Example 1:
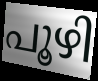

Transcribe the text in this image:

പൂഴി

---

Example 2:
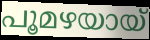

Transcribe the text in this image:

പൂമഴയായ്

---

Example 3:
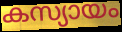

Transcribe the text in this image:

കസ്യായം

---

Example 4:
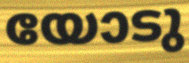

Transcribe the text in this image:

യോടു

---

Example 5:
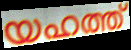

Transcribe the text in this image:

യഹത്ത്